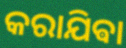
କରାଯିଵା